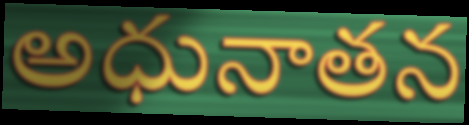
అధునాతన